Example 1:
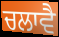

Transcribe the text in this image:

ਚਲਾਵੈ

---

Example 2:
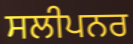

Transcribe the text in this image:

ਸਲੀਪਨਰ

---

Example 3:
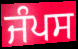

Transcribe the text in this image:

ਜੰਪਸ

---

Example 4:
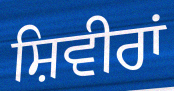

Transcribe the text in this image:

ਸ਼ਿਵੀਰਾਂ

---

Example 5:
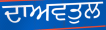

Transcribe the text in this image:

ਦਾਅਵਤੁਲ